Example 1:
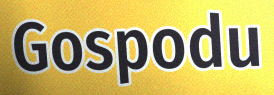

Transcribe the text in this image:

Gospodu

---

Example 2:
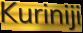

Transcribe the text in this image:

Kuriniji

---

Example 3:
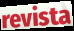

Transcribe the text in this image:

revista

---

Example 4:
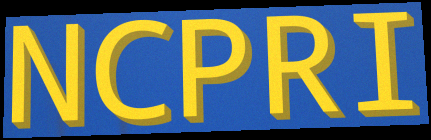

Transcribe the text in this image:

NCPRI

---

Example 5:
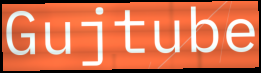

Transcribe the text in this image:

Gujtube